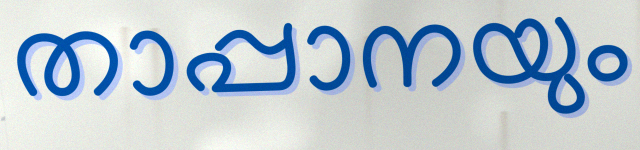
താപ്പാനയും